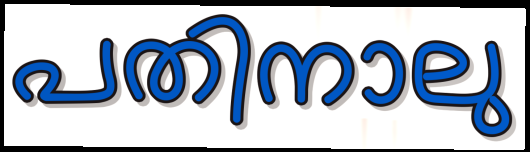
പതിനാലു